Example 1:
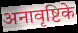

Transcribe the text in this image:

अनावृष्टिके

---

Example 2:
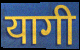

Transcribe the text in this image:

यागी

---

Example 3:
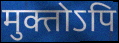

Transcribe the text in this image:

मुक्तोऽपि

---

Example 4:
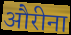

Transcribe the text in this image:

औरीना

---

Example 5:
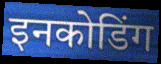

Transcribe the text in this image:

इनकोडिंग